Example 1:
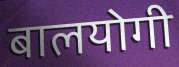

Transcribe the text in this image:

बालयोगी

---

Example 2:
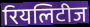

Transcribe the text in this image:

रियलिटीज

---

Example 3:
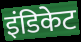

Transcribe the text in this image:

इंडिकेट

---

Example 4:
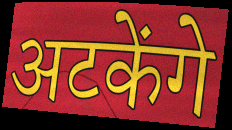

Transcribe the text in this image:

अटकेंगे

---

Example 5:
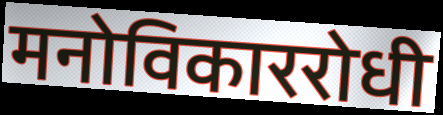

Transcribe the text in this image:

मनोविकाररोधी